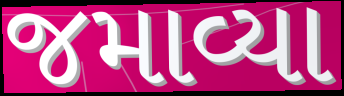
જમાવ્યા